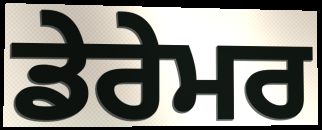
ਡੇਰੇਮਰ